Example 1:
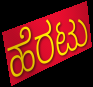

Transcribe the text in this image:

ಹೆರಟು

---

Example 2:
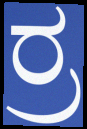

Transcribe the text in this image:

ರ್ರ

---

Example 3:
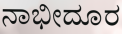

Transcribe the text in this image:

ನಾಭೀದೂರ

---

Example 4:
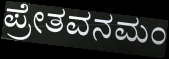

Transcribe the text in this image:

ಪ್ರೇತವನಮಂ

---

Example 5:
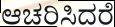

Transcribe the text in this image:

ಆಚರಿಸಿದರೆ